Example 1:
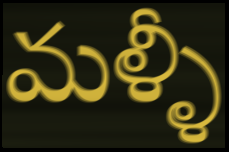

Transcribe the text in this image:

మళ్ళీ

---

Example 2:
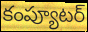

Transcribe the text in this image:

కంప్యూటర్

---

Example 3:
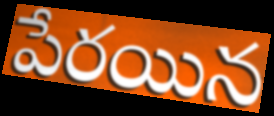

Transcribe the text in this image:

పేరయిన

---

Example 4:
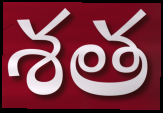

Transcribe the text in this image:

శత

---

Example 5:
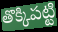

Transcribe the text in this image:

తొక్కిపట్టి